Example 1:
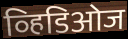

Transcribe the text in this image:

व्हिडिओज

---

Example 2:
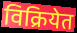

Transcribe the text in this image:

विक्रियेत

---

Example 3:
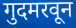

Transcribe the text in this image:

गुदमरवून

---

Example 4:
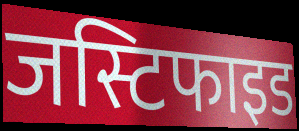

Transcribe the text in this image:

जस्टिफाइड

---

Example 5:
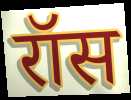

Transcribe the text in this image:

रॉस